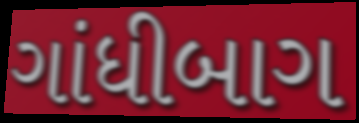
ગાંધીબાગ